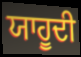
ਯਾਹੂਦੀ